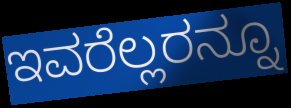
ಇವರೆಲ್ಲರನ್ನೂ